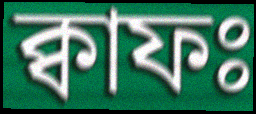
ক্বাফঃ